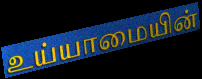
உய்யாமையின்